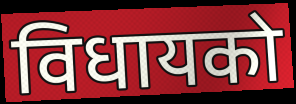
विधायको